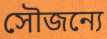
সৌজন্যে